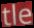
tle